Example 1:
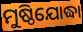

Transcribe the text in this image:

ମୁଷ୍ଠିଯୋଦ୍ଧା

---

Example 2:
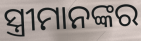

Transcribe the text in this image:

ସ୍ତ୍ରୀମାନଙ୍କର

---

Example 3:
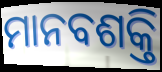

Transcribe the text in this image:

ମାନବଶକ୍ତି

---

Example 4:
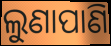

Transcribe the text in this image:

ଲୁଣାପାଣି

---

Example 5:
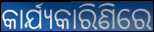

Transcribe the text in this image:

କାର୍ଯ୍ୟକାରିଣିରେ